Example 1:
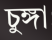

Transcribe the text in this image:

চুঙ্গা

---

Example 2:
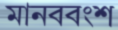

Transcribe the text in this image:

মানববংশ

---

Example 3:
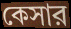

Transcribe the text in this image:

কেসার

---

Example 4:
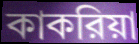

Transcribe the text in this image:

কাকরিয়া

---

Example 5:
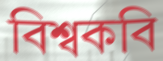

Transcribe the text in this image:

বিশ্বকবি